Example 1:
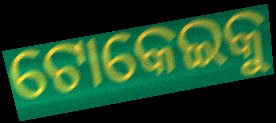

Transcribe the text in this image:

ଟୋକେଇକୁ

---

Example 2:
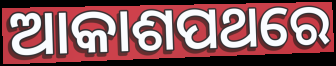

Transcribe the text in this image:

ଆକାଶପଥରେ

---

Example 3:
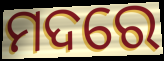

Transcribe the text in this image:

ମଦରେ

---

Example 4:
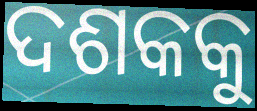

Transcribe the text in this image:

ଦଶକକୁ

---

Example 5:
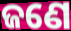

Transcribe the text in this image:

ଜଣେ